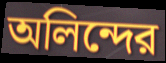
অলিন্দের